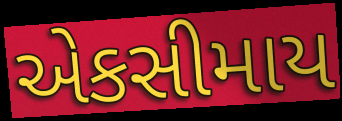
એકસીમાય